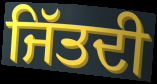
ਜਿੱਤਦੀ